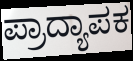
ಪ್ರಾದ್ಯಾಪಕ